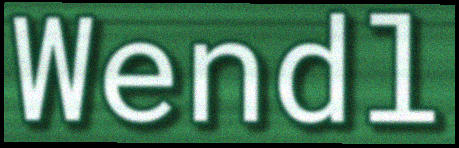
Wendl